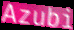
Azubi